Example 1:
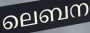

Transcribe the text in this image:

ലെബന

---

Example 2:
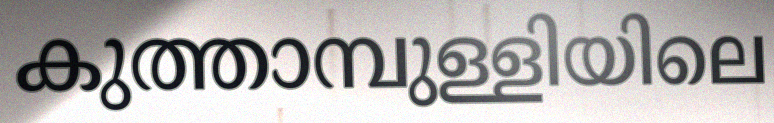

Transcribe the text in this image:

കുത്താമ്പുള്ളിയിലെ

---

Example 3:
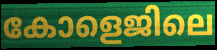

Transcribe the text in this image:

കോളെജിലെ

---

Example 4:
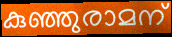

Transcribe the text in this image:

കുഞ്ഞുരാമന്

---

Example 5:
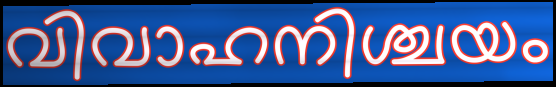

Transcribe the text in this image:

വിവാഹനിശ്ചയം